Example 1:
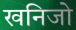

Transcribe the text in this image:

खनिजो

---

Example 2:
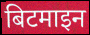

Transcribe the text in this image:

बिटमाइन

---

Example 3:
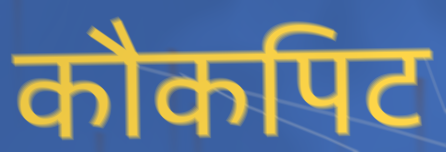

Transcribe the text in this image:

कौकपिट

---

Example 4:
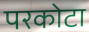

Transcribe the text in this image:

परकोटा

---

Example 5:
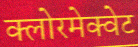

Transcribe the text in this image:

क्लोरमेक्वेट